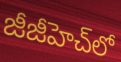
జీజీహెచ్‌లో